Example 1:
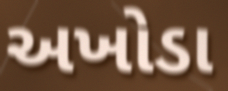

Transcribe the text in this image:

અખોડા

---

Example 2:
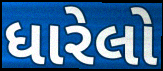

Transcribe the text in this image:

ધારેલો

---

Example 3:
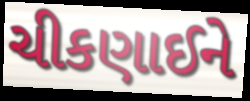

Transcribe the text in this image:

ચીકણાઈને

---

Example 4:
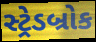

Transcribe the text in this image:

સ્ટ્રેડબ્રોક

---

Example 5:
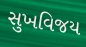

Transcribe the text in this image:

સુખવિજય